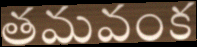
తమవంక